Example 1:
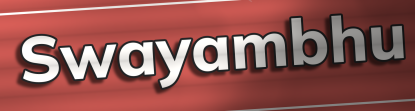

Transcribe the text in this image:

Swayambhu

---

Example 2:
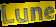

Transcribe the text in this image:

Lune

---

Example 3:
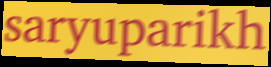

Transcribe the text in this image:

saryuparikh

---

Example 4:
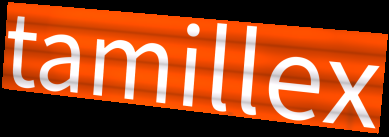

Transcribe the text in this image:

tamillex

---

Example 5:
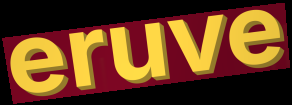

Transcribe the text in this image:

eruve